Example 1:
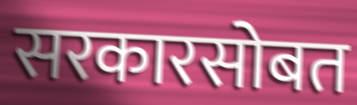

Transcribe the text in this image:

सरकारसोबत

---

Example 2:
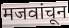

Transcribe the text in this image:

मजवांचून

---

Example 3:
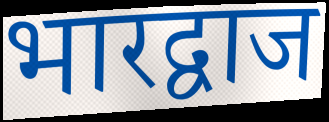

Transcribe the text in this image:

भारद्वाज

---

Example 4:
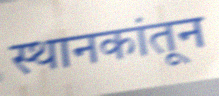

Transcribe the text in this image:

स्थानकांतून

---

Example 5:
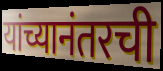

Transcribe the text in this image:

यांच्यानंतरची